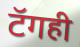
टॅगही